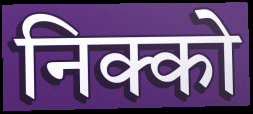
निक्को